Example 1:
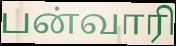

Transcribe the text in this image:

பன்வாரி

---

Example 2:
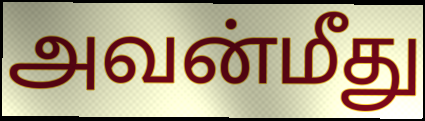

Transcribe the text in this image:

அவன்மீது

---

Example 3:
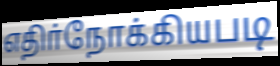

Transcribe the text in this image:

எதிர்நோக்கியபடி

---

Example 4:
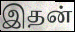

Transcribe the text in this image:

இதன்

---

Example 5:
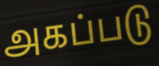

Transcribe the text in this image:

அகப்படு